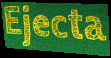
Ejecta